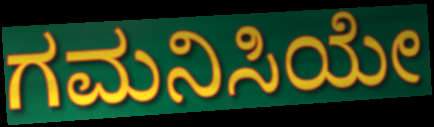
ಗಮನಿಸಿಯೇ